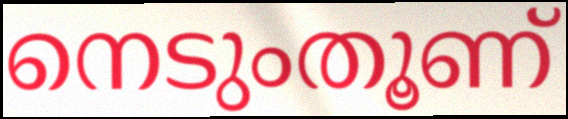
നെടുംതൂണ്